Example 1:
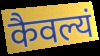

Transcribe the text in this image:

कैवल्यं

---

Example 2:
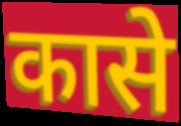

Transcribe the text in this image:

कासे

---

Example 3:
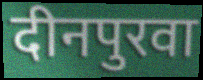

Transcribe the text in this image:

दीनपुरवा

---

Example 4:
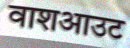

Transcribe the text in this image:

वाशआउट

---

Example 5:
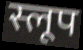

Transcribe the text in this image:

स्लूप